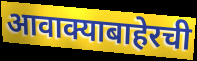
आवाक्याबाहेरची